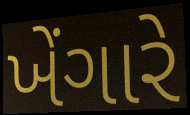
ખેંગારે